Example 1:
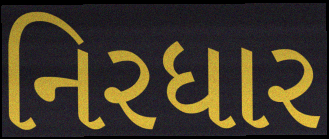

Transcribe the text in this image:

નિરધાર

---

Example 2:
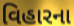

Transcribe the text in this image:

વિહારના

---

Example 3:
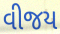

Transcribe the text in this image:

વીજય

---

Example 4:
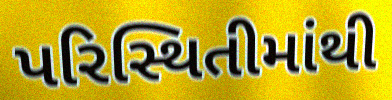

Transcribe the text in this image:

પરિસ્થિતીમાંથી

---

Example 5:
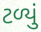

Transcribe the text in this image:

ટળ્યું